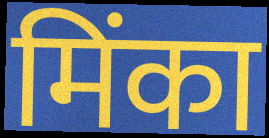
मिंका